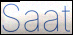
Saat